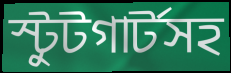
স্টুটগার্টসহ